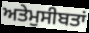
ਅਤੇਮੁਸੀਬਤਾਂ